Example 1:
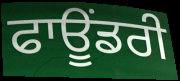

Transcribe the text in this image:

ਫਾਊਂਡਰੀ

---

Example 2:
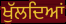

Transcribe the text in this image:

ਖੁੱਲਦਿਆਂ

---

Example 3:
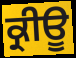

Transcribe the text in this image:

ਕ੍ਰੀਊ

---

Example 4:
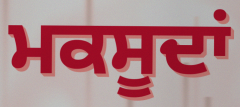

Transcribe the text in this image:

ਮਕਸੂਦਾਂ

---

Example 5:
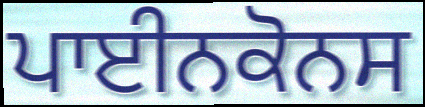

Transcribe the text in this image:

ਪਾਈਨਕੋਨਸ